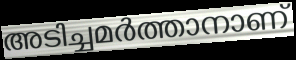
അടിച്ചമർത്താനാണ്